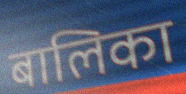
बालिका